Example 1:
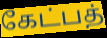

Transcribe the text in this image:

கேட்பத்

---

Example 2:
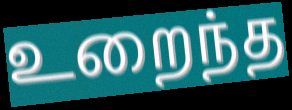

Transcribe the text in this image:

உறைந்த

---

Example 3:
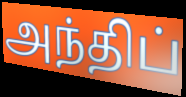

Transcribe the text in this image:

அந்திப்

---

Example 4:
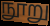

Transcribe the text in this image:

நூறு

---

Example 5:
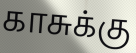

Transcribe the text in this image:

காசுக்கு